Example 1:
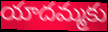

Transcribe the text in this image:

యాదమ్మకు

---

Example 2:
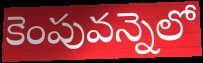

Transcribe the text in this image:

కెంపువన్నెలో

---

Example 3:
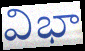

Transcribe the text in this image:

విభా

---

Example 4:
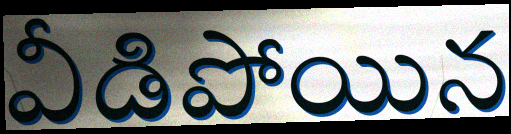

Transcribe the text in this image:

వీడిపోయిన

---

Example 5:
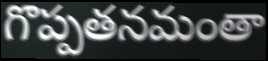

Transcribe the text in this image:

గొప్పతనమంతా